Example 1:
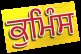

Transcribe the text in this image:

ਕੁਮਿੰਸ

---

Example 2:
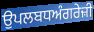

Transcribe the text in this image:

ਉਪਲਬਧਅੰਗਰੇਜ਼ੀ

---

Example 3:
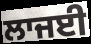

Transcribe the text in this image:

ਲਾਜਈ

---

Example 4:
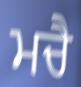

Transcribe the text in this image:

ਮਚੈ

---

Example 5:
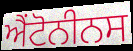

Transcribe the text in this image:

ਐਂਟੋਨੀਨਸ